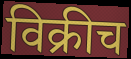
विक्रीच